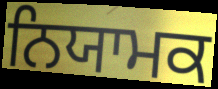
ਨਿਯਾਮਕ